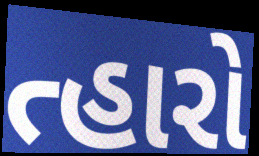
ત્હારો